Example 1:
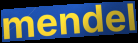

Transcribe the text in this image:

mendel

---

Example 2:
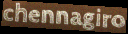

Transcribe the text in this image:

chennagiro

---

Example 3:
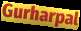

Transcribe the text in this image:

Gurharpal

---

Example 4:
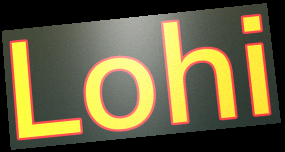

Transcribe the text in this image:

Lohi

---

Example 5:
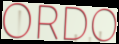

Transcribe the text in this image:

ORDO